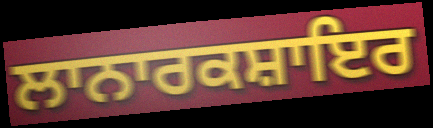
ਲਾਨਾਰਕਸ਼ਾਇਰ